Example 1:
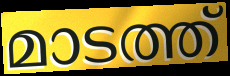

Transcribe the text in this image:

മാടത്ത്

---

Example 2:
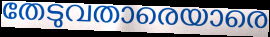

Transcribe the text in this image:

തേടുവതാരെയാരെ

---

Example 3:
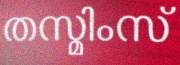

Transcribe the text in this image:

തസ്മിംസ്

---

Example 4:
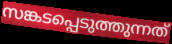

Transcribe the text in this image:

സങ്കടപ്പെടുത്തുന്നത്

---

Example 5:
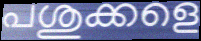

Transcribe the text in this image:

പശുക്കളെ